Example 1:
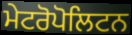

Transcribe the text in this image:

ਮੇਟਰੋਪੋਲਿਟਨ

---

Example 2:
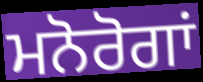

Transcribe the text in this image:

ਮਨੋਰੋਗਾਂ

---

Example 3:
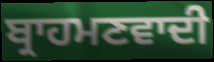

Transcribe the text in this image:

ਬ੍ਰਾਹਮਣਵਾਦੀ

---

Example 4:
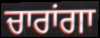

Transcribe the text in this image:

ਚਾਰਾਂਗਾ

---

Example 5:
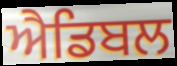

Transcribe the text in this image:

ਐਡਿਬਲ